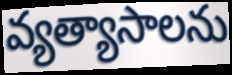
వ్యత్యాసాలను